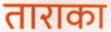
ताराका